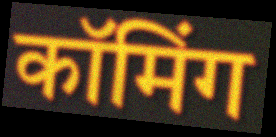
कॉमिंग